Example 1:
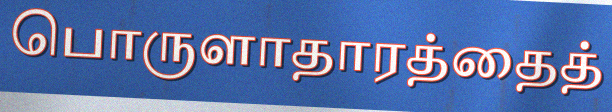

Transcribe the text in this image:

பொருளாதாரத்தைத்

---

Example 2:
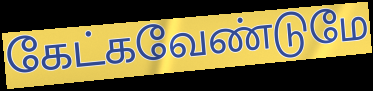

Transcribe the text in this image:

கேட்கவேண்டுமே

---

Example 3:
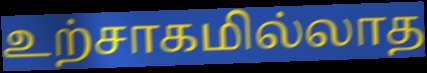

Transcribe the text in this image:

உற்சாகமில்லாத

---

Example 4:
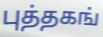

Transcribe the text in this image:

புத்தகங்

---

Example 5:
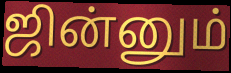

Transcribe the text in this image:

ஜின்னும்